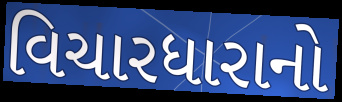
વિચારધારાનો